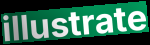
illustrate